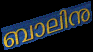
ബാലിനു